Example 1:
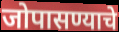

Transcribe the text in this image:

जोपासण्याचे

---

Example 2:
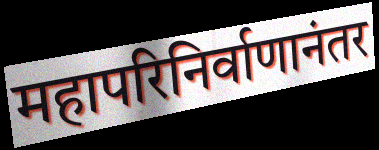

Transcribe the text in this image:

महापरिनिर्वाणानंतर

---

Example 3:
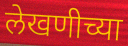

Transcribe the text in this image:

लेखणीच्या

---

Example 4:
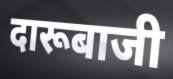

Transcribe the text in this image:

दारूबाजी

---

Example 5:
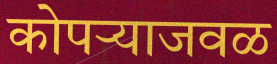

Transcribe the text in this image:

कोपऱ्याजवळ